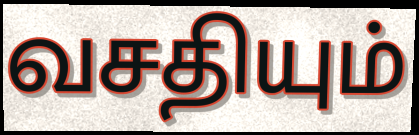
வசதியும்